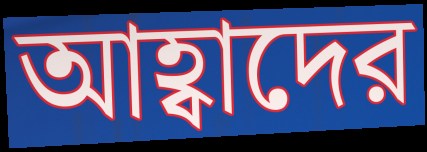
আহ্বাদের